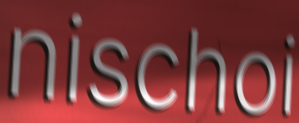
nischoi